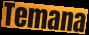
Temana